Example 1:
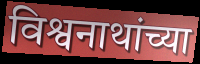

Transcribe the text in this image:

विश्वनाथांच्या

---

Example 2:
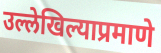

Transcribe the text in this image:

उल्लेखिल्याप्रमाणे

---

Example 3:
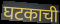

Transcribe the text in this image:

घटकाची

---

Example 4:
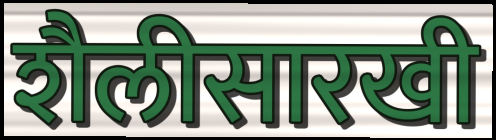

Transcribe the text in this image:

शैलीसारखी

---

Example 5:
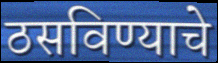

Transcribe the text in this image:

ठसविण्याचे